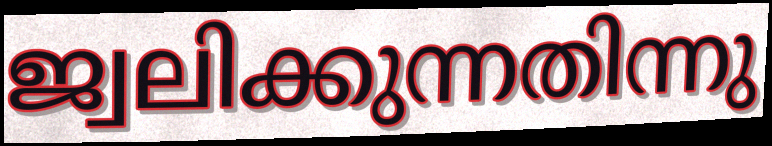
ജ്വലിക്കുന്നതിന്നു